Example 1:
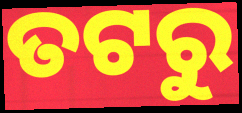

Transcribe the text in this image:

ତଟରୁ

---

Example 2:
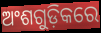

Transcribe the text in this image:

ଅଂଶଗୁଡ଼ିକରେ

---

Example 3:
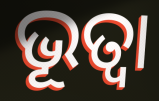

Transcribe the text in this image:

ଭୂତ୍ୱା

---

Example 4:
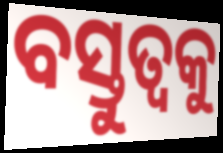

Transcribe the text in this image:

ବସ୍ତୁତ୍ଵକୁ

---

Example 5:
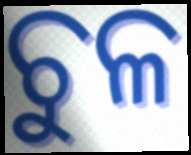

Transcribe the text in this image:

ଚୁଳ